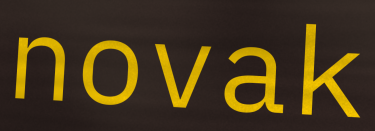
novak